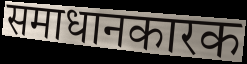
समाधानकारक